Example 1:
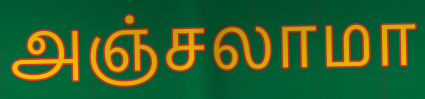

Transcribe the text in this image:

அஞ்சலாமா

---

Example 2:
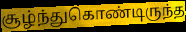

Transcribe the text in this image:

சூழ்ந்துகொண்டிருந்த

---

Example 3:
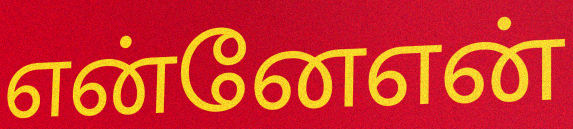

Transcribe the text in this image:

என்னேஎன்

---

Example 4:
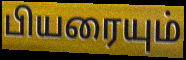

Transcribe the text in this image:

பியரையும்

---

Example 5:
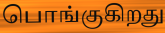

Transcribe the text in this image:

பொங்குகிறது